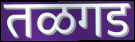
तळगड